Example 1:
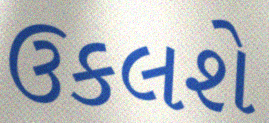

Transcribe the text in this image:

ઉકલશે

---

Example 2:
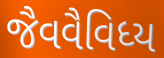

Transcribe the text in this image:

જૈવવૈવિધ્ય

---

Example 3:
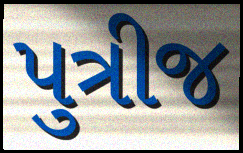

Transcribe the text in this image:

પુત્રીજ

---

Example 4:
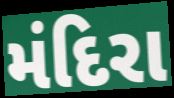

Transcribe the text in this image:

મંદિરા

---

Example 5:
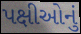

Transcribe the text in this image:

પક્ષીઓનું